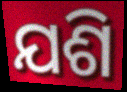
ଯଶି